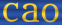
cao